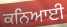
ਕਨਿਆਈ